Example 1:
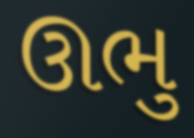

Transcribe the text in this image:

ઊભુ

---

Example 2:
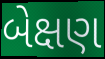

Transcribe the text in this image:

બેક્ષણ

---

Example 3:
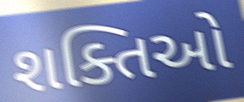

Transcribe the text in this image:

શક્તિઓ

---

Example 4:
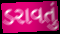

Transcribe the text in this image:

ડરાવતું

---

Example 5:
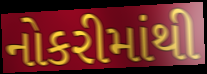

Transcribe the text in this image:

નોકરીમાંથી